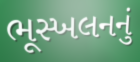
ભૂસ્ખલનનું